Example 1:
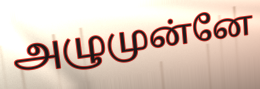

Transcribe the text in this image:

அழுமுன்னே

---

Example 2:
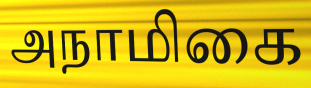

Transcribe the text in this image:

அநாமிகை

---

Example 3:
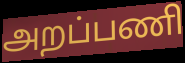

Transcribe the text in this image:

அறப்பணி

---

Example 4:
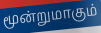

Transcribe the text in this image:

மூன்றுமாகும்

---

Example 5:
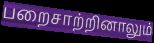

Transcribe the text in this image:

பறைசாற்றினாலும்